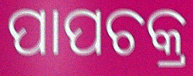
ପାପଚକ୍ର